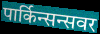
पार्किन्सन्सवर